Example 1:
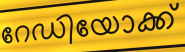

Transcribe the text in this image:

റേഡിയോക്ക്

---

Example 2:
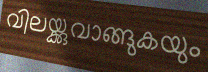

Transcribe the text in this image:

വിലയ്ക്കുവാങ്ങുകയും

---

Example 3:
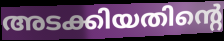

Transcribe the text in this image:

അടക്കിയതിന്റെ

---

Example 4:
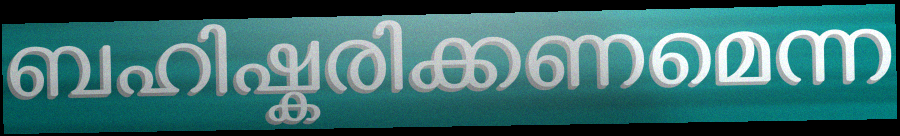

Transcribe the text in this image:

ബഹിഷ്കരിക്കണമെന്ന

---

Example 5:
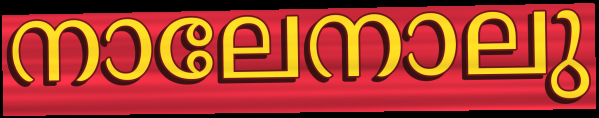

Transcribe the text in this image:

നാലേനാലു